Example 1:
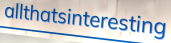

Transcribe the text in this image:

allthatsinteresting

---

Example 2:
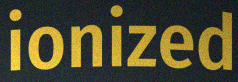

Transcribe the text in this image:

ionized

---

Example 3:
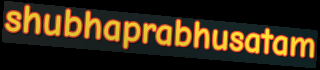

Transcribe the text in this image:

shubhaprabhusatam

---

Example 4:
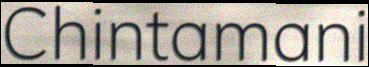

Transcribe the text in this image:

Chintamani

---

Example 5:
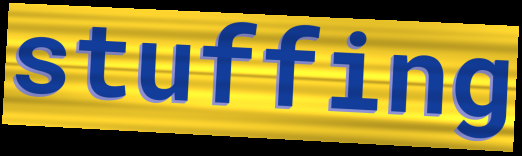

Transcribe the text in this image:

stuffing